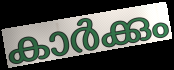
കാർക്കും